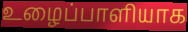
உழைப்பாளியாக